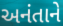
અનંતાને